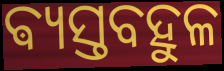
ଵ୍ୟସ୍ତବହୁଳ